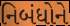
નિબંધોને